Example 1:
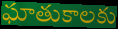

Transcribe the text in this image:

ఘాతుకాలకు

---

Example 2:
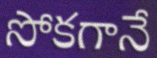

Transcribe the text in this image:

సోకగానే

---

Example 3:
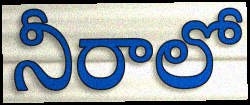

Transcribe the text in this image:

నీరాలో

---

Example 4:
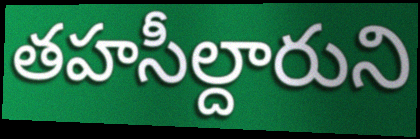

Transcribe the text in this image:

తహసీల్దారుని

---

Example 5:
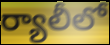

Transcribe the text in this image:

ర్యాలీలో